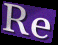
Re